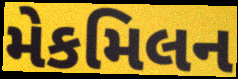
મેકમિલન